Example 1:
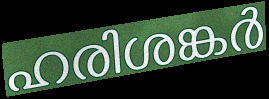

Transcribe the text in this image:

ഹരിശങ്കർ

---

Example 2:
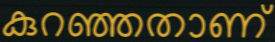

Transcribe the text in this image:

കുറഞ്ഞതാണ്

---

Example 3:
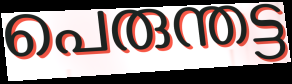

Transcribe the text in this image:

പെരുന്തട്ട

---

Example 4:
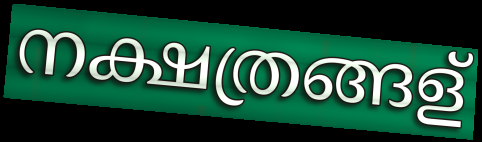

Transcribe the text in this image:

നക്ഷത്രങ്ങള്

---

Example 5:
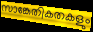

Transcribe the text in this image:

സാങ്കേതികതകളും